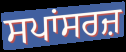
ਸਪਾਂਸਰਜ਼